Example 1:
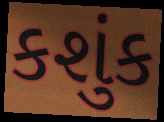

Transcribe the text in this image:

કશુંક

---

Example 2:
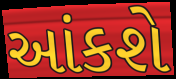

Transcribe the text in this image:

આંકશે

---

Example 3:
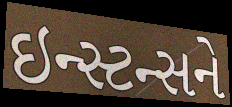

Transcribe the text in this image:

ઇન્સ્ટન્સને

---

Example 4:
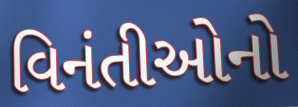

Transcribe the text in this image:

વિનંતીઓનો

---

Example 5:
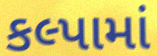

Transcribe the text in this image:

કલ્પામાં